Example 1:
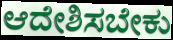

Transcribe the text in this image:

ಆದೇಶಿಸಬೇಕು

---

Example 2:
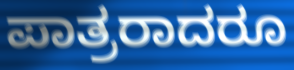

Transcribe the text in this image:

ಪಾತ್ರರಾದರೂ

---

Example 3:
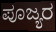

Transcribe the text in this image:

ಪೂಜ್ಯರ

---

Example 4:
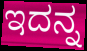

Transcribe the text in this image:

ಇದನ್ನ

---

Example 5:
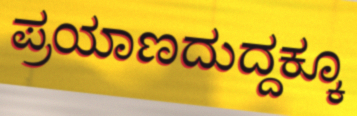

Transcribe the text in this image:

ಪ್ರಯಾಣದುದ್ದಕ್ಕೂ